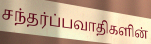
சந்தர்ப்பவாதிகளின்